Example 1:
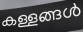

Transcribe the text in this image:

കള്ളങ്ങൾ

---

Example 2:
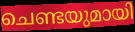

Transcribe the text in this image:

ചെണ്ടയുമായി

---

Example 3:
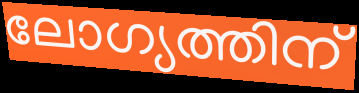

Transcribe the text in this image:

ലോഗ്യത്തിന്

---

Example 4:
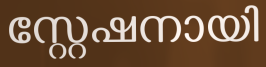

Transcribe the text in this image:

സ്റ്റേഷനായി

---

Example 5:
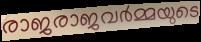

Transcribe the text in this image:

രാജരാജവർമ്മയുടെ